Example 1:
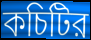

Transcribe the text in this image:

কচিটির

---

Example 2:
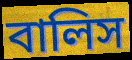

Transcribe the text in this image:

বালিস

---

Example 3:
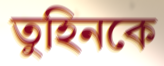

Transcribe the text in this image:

তুহিনকে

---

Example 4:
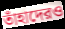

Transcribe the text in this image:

তাঁহাদেরও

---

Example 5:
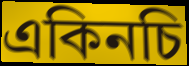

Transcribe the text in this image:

একিনচি